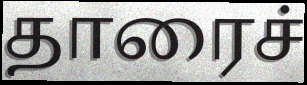
தாரைச்